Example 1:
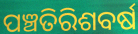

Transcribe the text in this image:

ପଞ୍ଚତିରିଶବର୍ଷ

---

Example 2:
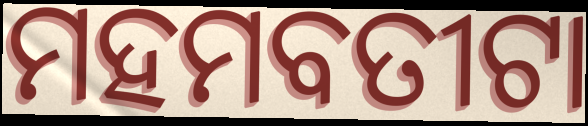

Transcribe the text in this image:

ମହମବତୀଟା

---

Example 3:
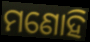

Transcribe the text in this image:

ମଣୋହି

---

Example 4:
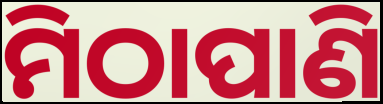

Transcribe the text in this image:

ମିଠାପାଣି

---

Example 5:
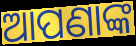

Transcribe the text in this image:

ଆପଣାଙ୍କ